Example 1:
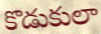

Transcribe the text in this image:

కొడుకులా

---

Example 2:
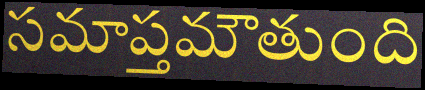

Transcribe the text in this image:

సమాప్తమౌతుంది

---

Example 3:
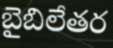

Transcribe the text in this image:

బైబిలేతర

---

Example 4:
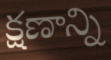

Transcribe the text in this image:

క్షణాన్ని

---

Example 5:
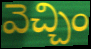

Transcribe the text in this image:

వెచ్చిం